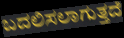
ಬದಲಿಸಲಾಗುತ್ತದೆ